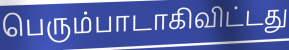
பெரும்பாடாகிவிட்டது